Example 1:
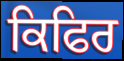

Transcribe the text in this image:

ਕਿਫਿਰ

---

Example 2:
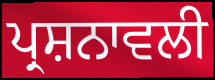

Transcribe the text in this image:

ਪ੍ਰਸ਼ਨਾਵਲੀ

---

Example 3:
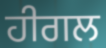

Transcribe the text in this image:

ਹੀਗਲ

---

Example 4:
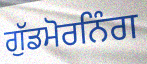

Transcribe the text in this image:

ਗੁੱਡਮੋਰਨਿੰਗ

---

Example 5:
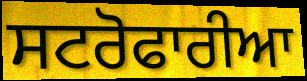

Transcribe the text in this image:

ਸਟਰੋਫਾਰੀਆ